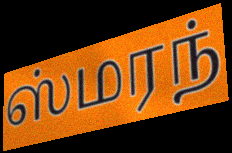
ஸ்மரந்